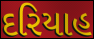
દરિયાહ